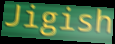
Jigish